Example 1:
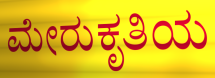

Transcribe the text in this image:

ಮೇರುಕೃತಿಯ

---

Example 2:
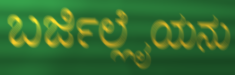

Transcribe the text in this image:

ಬರ್ಜಿಲ್ಲೈಯನು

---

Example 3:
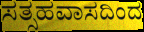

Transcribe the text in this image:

ಸತ್ಸಹವಾಸದಿಂದ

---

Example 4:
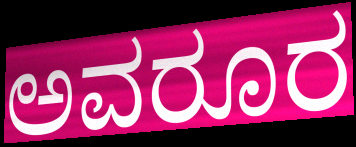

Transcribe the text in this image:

ಅವರೂರ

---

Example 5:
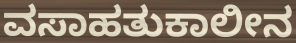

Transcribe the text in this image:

ವಸಾಹತುಕಾಲೀನ